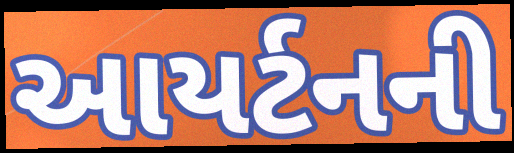
આયર્ટનની